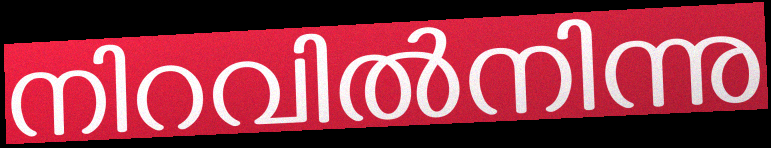
നിറവിൽനിന്നു